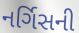
નર્ગિસની